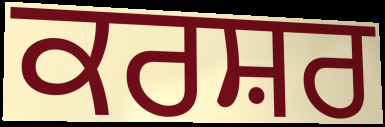
ਕਰਸ਼ਰ